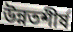
উন্নতশীর্ষ